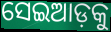
ସେଇଆଡ଼କୁ